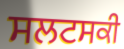
ਸਲਟਸਕੀ